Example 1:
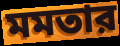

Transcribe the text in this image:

মমতার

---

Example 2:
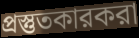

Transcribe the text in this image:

প্রস্তুতকারকরা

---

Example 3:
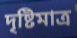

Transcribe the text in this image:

দৃষ্টিমাত্র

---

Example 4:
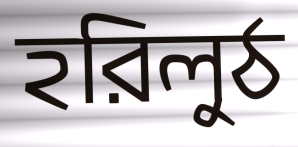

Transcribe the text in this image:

হরিলুঠ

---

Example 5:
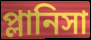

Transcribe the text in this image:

প্লানিসা